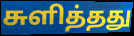
சுளித்தது